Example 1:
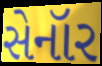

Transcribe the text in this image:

સેનૉર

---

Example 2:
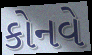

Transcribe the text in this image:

કોનવે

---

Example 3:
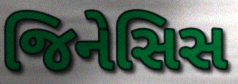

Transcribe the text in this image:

જિનેસિસ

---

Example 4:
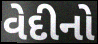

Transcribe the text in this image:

વેદીનો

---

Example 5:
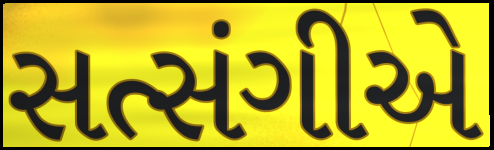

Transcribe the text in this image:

સત્સંગીએ